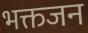
भक्तजन